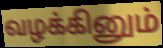
வழக்கினும்